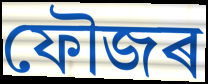
ফৌজৰ